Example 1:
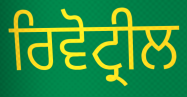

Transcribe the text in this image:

ਰਿਵੋਟ੍ਰੀਲ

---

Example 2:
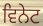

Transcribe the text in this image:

ਵਿਨੇਟ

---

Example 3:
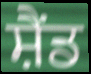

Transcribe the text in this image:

ਸ਼ੈਂਡ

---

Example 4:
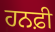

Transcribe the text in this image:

ਹਨਫ਼ੀ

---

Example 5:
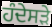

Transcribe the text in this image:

ਹੰਦੇਸੜੇ